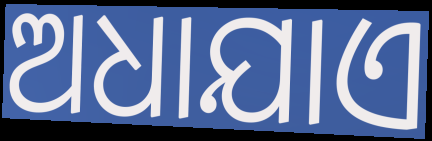
ଅଧାଯାଏ